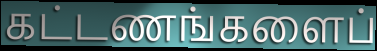
கட்டணங்களைப்